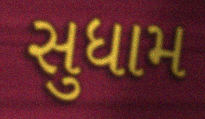
સુધામ